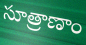
సూత్రాణాం